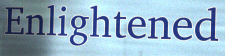
Enlightened